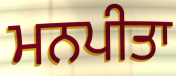
ਮਨਪੀਤਾ